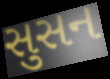
સુસન